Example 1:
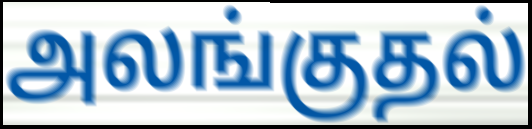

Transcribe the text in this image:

அலங்குதல்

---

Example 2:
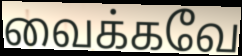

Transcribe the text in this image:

வைக்கவே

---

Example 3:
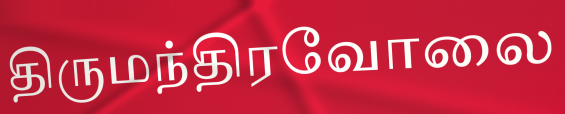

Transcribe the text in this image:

திருமந்திரவோலை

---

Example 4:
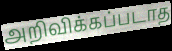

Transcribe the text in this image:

அறிவிக்கப்படாத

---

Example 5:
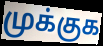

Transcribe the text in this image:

முக்குக